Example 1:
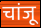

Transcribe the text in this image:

चांजू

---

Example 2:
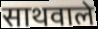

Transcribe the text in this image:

साथवाले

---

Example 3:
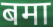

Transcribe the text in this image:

बमा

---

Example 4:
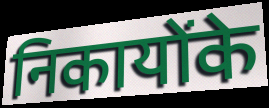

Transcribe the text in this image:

निकायोंके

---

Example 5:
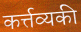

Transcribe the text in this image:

कर्त्तव्यकी